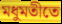
মধুমতীতে